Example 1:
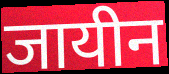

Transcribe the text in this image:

जायीन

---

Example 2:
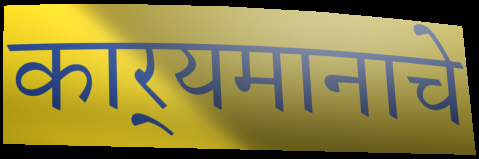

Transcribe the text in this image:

कार्यमानाचे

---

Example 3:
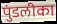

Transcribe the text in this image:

पुंडलीका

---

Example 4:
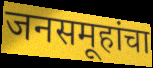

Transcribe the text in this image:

जनसमूहांचा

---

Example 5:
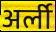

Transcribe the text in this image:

अर्ली